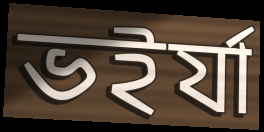
ভইর্যা